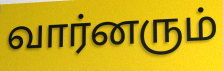
வார்னரும்